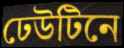
ঢেউটিনে